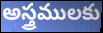
అస్త్రములకు